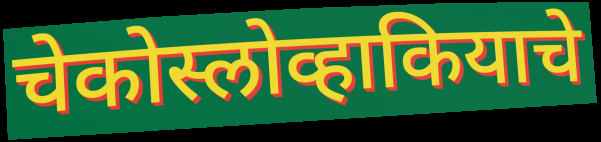
चेकोस्लोव्हाकियाचे